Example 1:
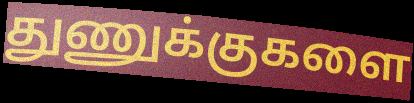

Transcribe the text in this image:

துணுக்குகளை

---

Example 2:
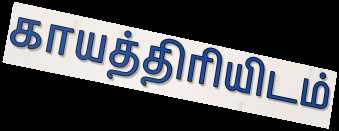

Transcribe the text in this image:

காயத்திரியிடம்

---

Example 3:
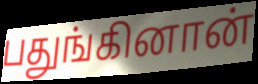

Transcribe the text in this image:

பதுங்கினான்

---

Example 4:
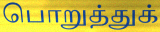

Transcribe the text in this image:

பொறுத்துக்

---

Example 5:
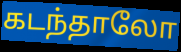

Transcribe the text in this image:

கடந்தாலோ